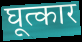
घूत्कार